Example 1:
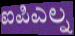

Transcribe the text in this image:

ಐಪಿಎಲ್ನ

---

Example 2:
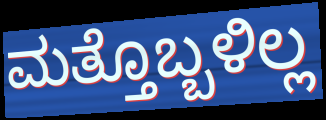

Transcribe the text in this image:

ಮತ್ತೊಬ್ಬಳಿಲ್ಲ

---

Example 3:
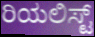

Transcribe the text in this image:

ರಿಯಲಿಸ್ಟ್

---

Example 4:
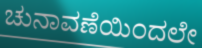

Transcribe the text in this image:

ಚುನಾವಣೆಯಿಂದಲೇ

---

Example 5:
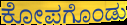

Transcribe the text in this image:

ಕೋಪಗೊಂಡು